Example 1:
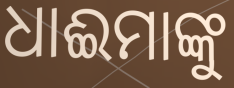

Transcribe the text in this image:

ଧାଈମାଙ୍କୁ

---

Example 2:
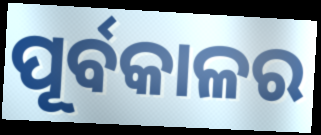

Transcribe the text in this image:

ପୂର୍ବକାଳର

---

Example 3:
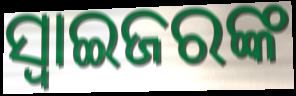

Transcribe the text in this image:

ସ୍ଵାଇଜରଙ୍କ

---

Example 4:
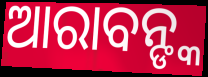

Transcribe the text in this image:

ଆରାବନ୍ଙ୍କ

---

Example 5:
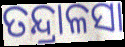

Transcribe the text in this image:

ତନ୍ଦ୍ରାଳସା